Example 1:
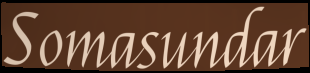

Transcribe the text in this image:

Somasundar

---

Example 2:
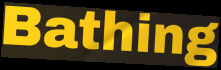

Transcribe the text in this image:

Bathing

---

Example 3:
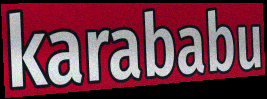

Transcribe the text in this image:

karababu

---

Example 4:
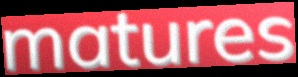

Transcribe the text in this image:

matures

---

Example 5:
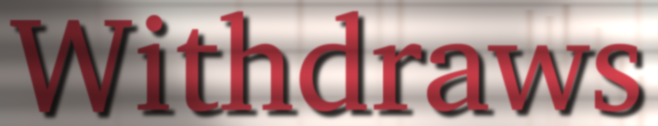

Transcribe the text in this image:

Withdraws